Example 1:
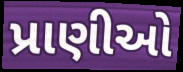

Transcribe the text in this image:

પ્રાણીઓ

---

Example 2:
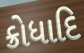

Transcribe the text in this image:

ક્રોધાદિ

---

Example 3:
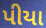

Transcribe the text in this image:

પીયા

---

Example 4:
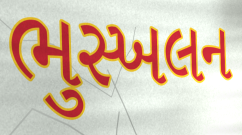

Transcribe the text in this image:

ભુસ્ખલન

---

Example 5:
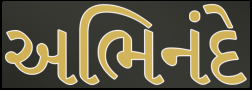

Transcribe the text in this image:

અભિનંદે